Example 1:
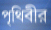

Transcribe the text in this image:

পৃথিবীর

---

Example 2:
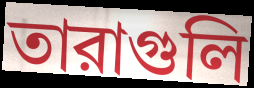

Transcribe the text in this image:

তারাগুলি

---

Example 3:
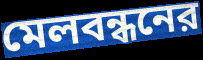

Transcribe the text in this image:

মেলবন্ধনের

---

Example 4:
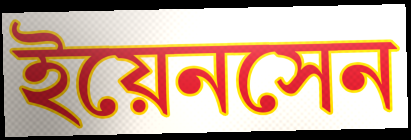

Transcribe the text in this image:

ইয়েনসেন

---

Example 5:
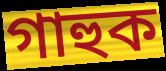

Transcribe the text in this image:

গাহুক